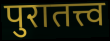
पुरातत्त्व